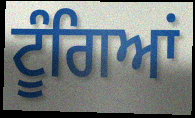
ਟੂੰਗਿਆਂ